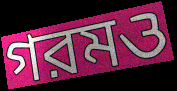
গরমও